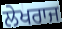
ਲੇਖਰਾਜ